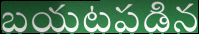
బయటపడిన